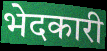
भेदकारी